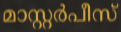
മാസ്റ്റർപീസ്